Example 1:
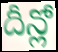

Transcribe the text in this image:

దీన్లో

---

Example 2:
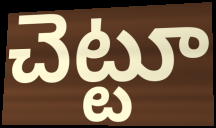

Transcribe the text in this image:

చెట్టూ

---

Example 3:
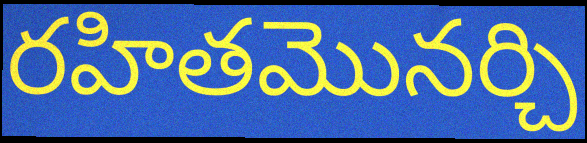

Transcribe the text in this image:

రహితమొనర్చి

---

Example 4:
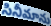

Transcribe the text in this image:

సినీమాను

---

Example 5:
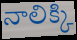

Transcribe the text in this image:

నాలిక్కి